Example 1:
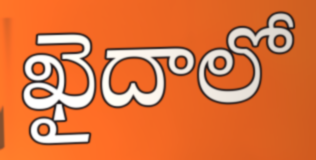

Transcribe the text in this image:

ఖైదాలో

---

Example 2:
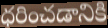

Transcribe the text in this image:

ధరించడానికి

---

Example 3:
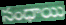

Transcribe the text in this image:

సంధాయి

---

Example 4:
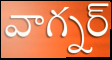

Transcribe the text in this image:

వాగ్నర్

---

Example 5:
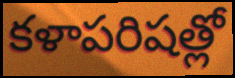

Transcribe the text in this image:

కళాపరిషత్లో